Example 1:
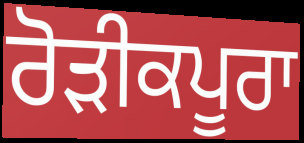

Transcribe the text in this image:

ਰੋੜੀਕਪੂਰਾ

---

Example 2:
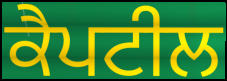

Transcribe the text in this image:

ਕੈਪਟੀਲ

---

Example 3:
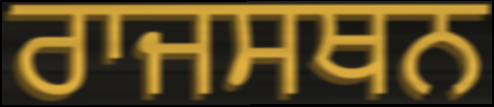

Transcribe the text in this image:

ਰਾਜਸਥਨ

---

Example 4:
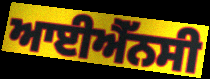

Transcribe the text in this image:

ਆਈਐੱਨਸੀ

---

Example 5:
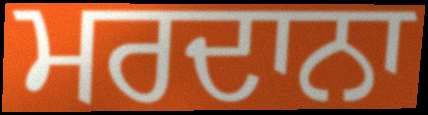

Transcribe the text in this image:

ਮਰਦਾਨਾ